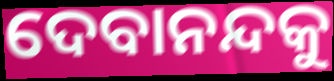
ଦେବାନନ୍ଦକୁ